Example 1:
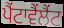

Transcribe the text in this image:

ਪੈਂਟਾਵੈਂਲੈਂਟ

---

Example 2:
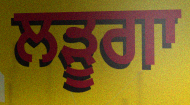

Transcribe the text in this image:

ਲੜੂਗਾ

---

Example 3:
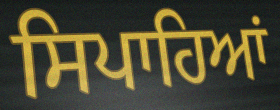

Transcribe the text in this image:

ਸਿਪਾਹਿਆਂ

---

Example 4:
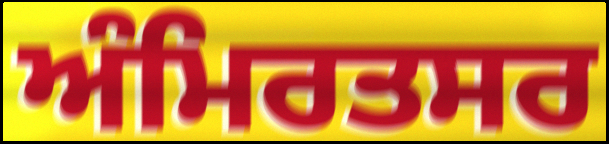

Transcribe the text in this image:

ਅੰਮਿਰਤਸਰ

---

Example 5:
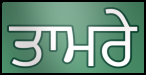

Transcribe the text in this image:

ਤਾਮਰੇ